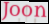
Joon